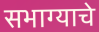
सभाग्याचे